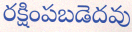
రక్షింపబడెదవు